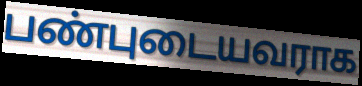
பண்புடையவராக